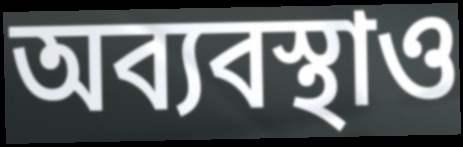
অব্যবস্থাও